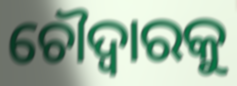
ଚୌଦ୍ୱାରକୁ